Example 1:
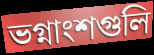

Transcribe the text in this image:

ভগ্নাংশগুলি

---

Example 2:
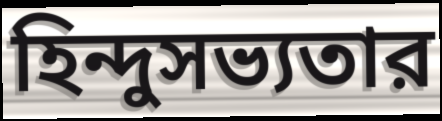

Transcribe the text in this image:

হিন্দুসভ্যতার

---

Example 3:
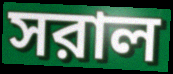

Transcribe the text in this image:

সরাল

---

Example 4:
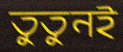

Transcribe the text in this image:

তুতুনই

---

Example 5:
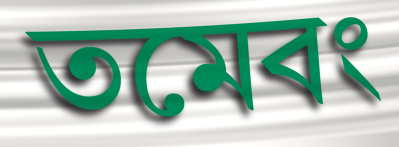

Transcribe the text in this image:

তমেবং